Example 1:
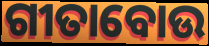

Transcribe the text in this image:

ଗୀତାବୋଉ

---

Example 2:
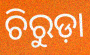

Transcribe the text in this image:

ଚିରୁଡ଼ା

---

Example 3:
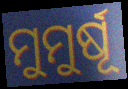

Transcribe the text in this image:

ମୁମୁର୍ଷୂ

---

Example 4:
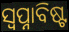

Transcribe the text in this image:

ସ୍ୱପ୍ନାବିଷ୍ଟ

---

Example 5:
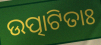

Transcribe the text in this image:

ଉତ୍ପାଟିତାଃ